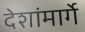
देशांमार्गे